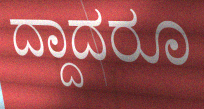
ದ್ದಾದರೂ